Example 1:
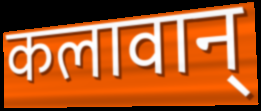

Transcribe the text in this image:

कलावान्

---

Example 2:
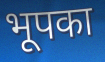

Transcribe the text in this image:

भूपका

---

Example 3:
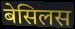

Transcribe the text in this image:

बेसिलस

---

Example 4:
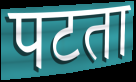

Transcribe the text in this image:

पटता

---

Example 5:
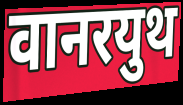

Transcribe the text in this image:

वानरयुथ